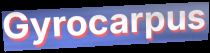
Gyrocarpus